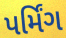
પર્મિંગ